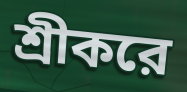
শ্রীকরে